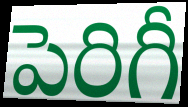
పెరిగీ